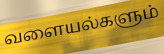
வளையல்களும்